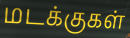
மடக்குகள்